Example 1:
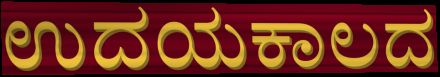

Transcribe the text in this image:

ಉದಯಕಾಲದ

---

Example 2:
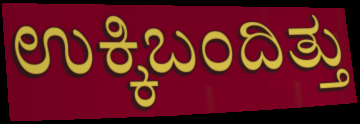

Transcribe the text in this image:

ಉಕ್ಕಿಬಂದಿತ್ತು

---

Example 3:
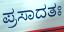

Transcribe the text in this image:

ಪ್ರಸಾದತಃ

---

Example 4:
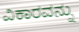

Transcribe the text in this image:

ವಿಕಾರವನ್ನು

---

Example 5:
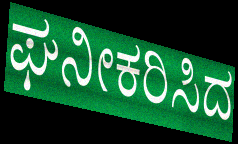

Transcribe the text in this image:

ಘನೀಕರಿಸಿದ